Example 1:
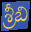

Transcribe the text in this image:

శ్రీబి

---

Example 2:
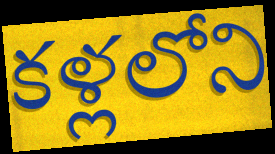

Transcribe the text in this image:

కళ్లలోని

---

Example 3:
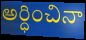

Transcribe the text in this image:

అర్ధించినా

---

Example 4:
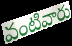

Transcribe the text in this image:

వంటివారు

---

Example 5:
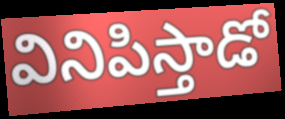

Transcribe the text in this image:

వినిపిస్తాడో